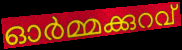
ഓർമ്മക്കുറവ്